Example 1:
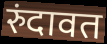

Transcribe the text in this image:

रुंदावत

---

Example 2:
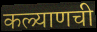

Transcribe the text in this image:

कल्याणची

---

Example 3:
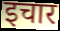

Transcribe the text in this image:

इचार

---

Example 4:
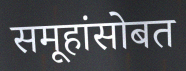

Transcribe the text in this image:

समूहांसोबत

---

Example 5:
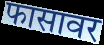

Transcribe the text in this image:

फासावर